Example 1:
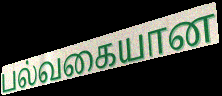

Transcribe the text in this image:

பல்வகையான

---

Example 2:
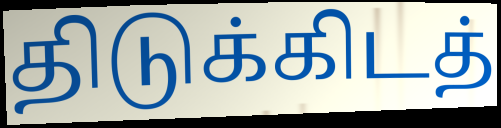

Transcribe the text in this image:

திடுக்கிடத்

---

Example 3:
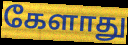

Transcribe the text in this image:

கேளாது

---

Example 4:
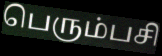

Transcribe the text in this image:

பெரும்பசி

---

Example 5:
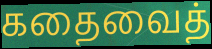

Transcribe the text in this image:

கதைவைத்